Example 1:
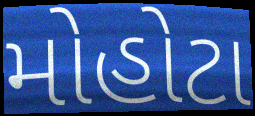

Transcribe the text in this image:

મોહોટા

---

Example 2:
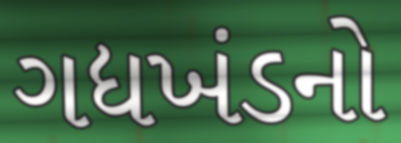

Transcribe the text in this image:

ગદ્યખંડનો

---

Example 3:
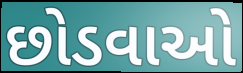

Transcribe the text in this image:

છોડવાઓ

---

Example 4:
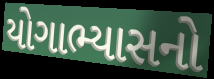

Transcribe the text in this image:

યોગાભ્યાસનો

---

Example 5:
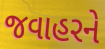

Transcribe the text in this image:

જવાહરને